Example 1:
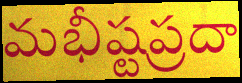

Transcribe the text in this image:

మభీష్టప్రదా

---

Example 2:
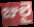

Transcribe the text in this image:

జులై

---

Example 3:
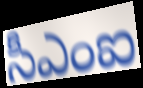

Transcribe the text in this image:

సీఎంఐ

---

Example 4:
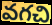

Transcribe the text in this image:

వగచి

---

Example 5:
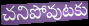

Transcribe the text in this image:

చనిపోవుటకు